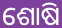
ଶୋଷି